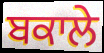
ਬਕਾਲੇ